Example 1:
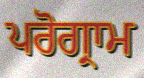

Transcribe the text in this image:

ਪਰੋਗ੍ਰਾਮ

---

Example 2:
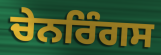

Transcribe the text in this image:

ਚੇਨਰਿੰਗਸ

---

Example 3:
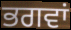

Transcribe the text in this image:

ਭਗਵਾਂ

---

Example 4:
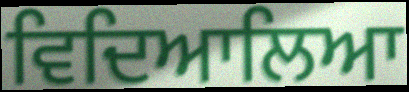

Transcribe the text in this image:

ਵਿਦਿਆਲਿਆ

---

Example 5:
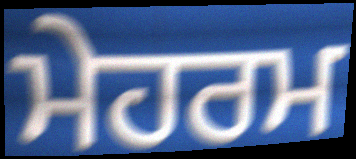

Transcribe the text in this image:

ਮੇਹਰਮ